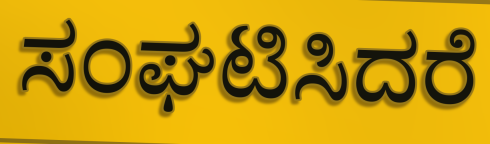
ಸಂಘಟಿಸಿದರೆ